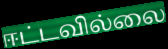
ஈட்டவில்லை